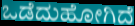
ಒಡೆದುಹೋಗಿದೆ